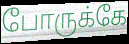
போருக்கே